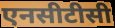
एनसीटीसी